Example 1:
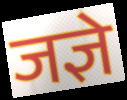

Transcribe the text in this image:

जज्ञे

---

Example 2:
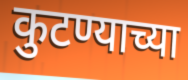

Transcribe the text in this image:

कुटण्याच्या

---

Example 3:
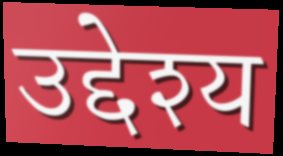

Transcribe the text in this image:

उद्देश्य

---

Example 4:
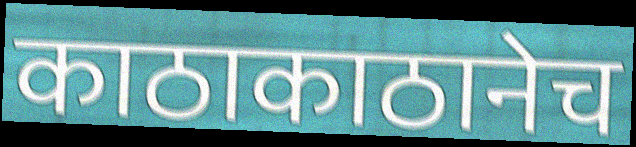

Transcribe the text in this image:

काठाकाठानेच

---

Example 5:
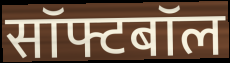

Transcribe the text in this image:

सॉफ्टबॉल